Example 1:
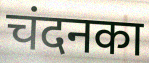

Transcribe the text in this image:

चंदनका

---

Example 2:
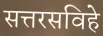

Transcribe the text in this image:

सत्तरसविहे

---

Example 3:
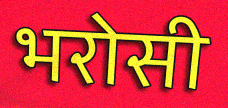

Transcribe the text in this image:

भरोसी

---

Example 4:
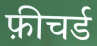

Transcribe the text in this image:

फ़ीचर्ड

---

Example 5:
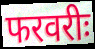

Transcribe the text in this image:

फरवरीः